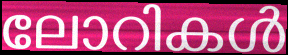
ലോറികൾ